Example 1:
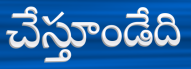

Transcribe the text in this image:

చేస్తూండేది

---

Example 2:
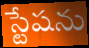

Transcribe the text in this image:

స్టేషను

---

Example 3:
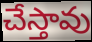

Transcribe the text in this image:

చేస్తావు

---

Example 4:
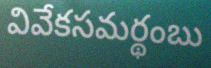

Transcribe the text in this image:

వివేకసమర్థంబు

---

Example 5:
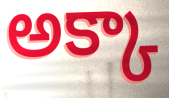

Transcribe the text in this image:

అక్కా